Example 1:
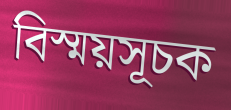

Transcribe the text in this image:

বিস্ময়সূচক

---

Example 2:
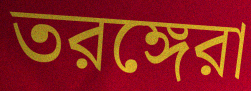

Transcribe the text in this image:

তরঙ্গেরা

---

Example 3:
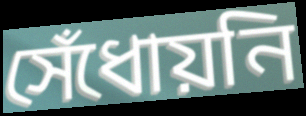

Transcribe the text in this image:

সেঁধোয়নি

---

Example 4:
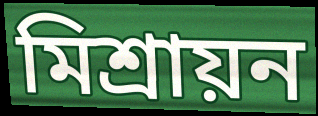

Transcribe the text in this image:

মিশ্রায়ন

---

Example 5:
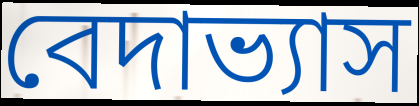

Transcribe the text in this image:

বেদাভ্যাস